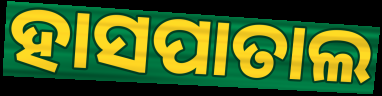
ହାସପାତାଲ